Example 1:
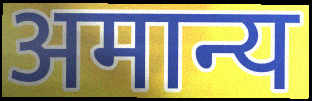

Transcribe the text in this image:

अमान्य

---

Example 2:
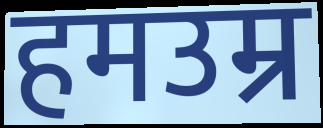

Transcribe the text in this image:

हमउम्र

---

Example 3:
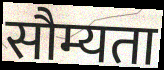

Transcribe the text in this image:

सौम्यता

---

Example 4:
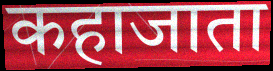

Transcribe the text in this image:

कहाजाता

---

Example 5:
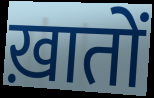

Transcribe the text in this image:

ख़ातों